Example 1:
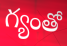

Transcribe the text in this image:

గ్యంతో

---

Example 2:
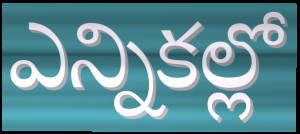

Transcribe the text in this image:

ఎన్నికల్లో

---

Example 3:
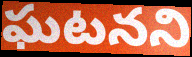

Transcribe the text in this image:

ఘటనని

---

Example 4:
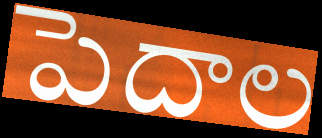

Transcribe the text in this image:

పెదాల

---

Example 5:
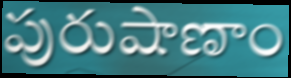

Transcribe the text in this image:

పురుషాణాం